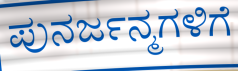
ಪುನರ್ಜನ್ಮಗಳಿಗೆ